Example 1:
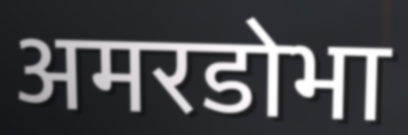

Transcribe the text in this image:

अमरडोभा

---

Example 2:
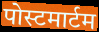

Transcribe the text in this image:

पोस्‍टमार्टम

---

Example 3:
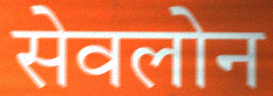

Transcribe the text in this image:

सेवलोन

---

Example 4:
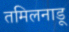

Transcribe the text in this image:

तमिलनाडू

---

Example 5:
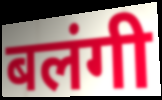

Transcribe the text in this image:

बलंगी